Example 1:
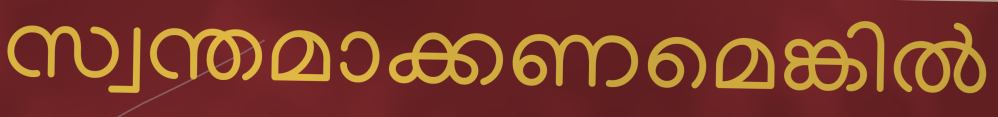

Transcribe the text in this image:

സ്വന്തമാക്കണമെങ്കിൽ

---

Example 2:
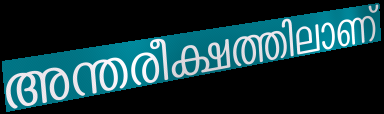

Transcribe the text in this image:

അന്തരീക്ഷത്തിലാണ്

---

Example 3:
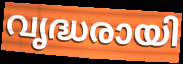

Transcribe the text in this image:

വൃദ്ധരായി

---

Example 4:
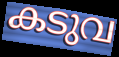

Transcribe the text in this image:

കടുവ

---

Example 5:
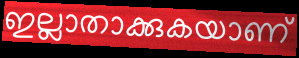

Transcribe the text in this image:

ഇല്ലാതാക്കുകയാണ്